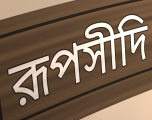
রূপসীদি